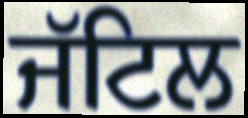
ਜੱਟਿਲ